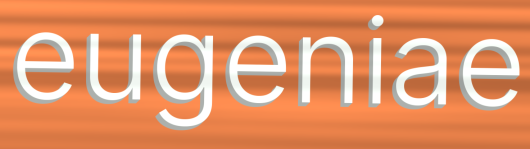
eugeniae